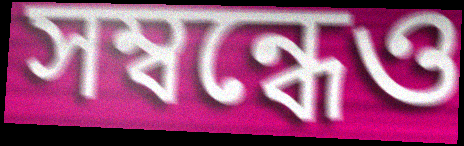
সম্বন্ধেও